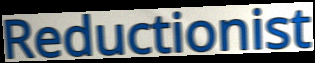
Reductionist